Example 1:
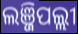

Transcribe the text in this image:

ଲଞ୍ଜିପଲ୍ଲୀ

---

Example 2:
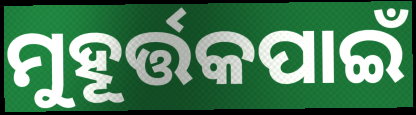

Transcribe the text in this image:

ମୁହୂର୍ତ୍ତକପାଇଁ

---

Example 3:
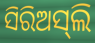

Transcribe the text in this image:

ସିରିଅସ୍‌ଲି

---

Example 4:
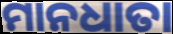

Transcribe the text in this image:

ମାନଧାତା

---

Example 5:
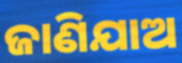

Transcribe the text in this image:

ଜାଣିଯାଅ